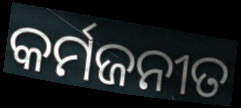
କର୍ମଜନୀତ